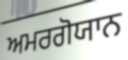
ਅਮਰਗੋਯਾਨ